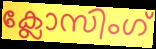
ക്ലോസിംഗ്